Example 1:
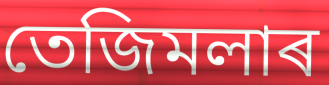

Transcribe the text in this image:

তেজিমলাৰ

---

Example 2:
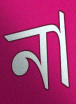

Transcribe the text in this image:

না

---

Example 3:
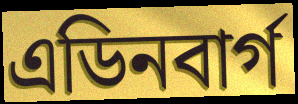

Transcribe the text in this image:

এডিনবাৰ্গ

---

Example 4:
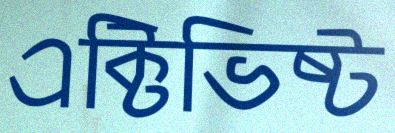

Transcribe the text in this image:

এক্টিভিষ্ট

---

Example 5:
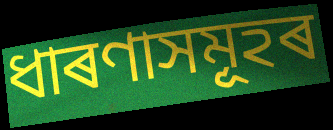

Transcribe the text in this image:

ধাৰণাসমূহৰ